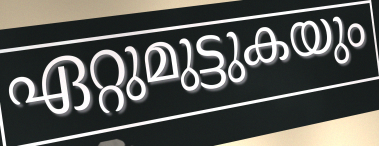
ഏറ്റുമുട്ടുകയും